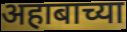
अहाबाच्या